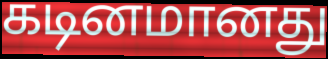
கடினமானது